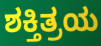
ಶಕ್ತಿತ್ರಯ